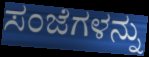
ಸಂಜೆಗಳನ್ನು